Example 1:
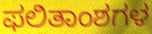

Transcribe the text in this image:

ಫಲಿತಾಂಶಗಳ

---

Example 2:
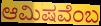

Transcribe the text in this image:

ಆಮಿಷವೆಂಬ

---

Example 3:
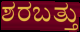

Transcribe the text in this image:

ಶರಬತ್ತು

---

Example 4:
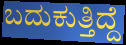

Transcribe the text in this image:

ಬದುಕುತ್ತಿದ್ದೆ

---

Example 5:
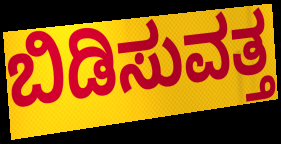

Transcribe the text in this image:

ಬಿಡಿಸುವತ್ತ